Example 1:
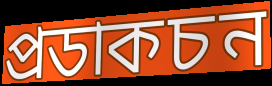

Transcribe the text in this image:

প্ৰডাকচন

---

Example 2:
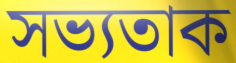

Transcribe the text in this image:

সভ্যতাক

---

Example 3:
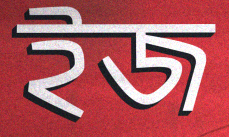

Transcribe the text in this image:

ইজ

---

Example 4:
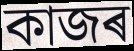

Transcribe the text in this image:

কাজৰ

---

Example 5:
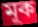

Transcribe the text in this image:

মূক